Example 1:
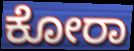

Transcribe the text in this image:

ಕೋರಾ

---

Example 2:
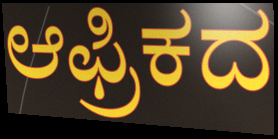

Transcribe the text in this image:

ಆಫ್ರಿಕದ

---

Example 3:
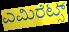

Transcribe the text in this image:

ಎಮಿರೆಟ್ಸ್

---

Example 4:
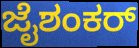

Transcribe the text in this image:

ಜೈಶಂಕರ್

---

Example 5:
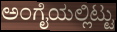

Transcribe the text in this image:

ಅಂಗೈಯಲ್ಲಿಟ್ಟು